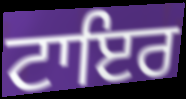
ਟਾਇਰ